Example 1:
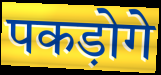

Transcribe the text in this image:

पकड़ोगे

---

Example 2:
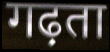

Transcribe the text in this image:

गढ़ता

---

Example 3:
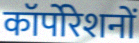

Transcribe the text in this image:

कॉर्पोरेशनों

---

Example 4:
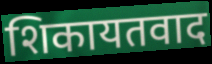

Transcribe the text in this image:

शिकायतवाद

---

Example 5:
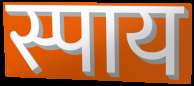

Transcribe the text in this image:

स्पाय